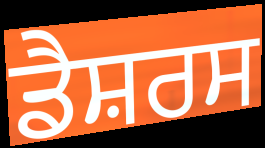
ਡੈਸ਼ਰਸ